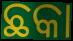
ଛକା